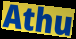
Athu